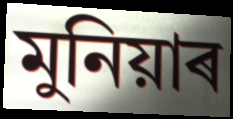
মুনিয়াৰ